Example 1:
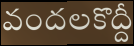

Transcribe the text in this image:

వందలకొద్దీ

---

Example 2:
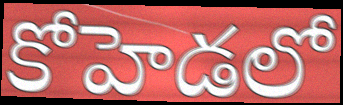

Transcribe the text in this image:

కోహెడలో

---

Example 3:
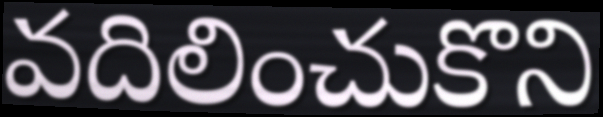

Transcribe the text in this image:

వదిలించుకొని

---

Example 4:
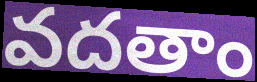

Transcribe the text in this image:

వదతాం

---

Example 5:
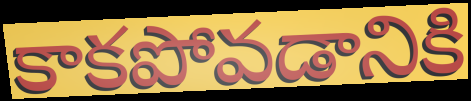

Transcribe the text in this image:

కాకపోవడానికి